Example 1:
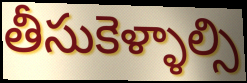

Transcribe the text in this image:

తీసుకెళ్ళాల్సి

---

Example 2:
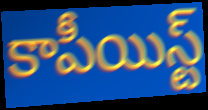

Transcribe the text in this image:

కాపీయిస్ట్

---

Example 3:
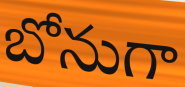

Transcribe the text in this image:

బోనుగా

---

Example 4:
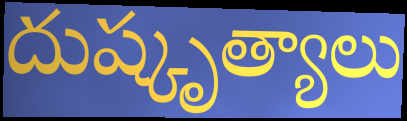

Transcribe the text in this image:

దుష్కృత్యాలు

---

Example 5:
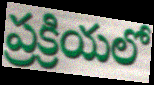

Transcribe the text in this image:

ప్రక్రియలో